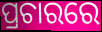
ପ୍ରଚାରରେ